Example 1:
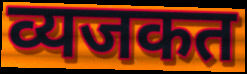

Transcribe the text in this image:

व्यजकत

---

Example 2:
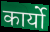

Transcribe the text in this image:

कार्यो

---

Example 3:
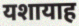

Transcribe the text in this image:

यशायाह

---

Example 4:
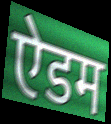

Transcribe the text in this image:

ऐडम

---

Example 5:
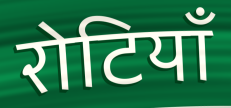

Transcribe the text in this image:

रोटियाँ